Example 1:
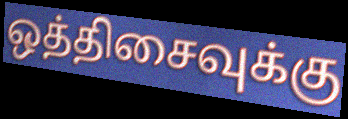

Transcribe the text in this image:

ஒத்திசைவுக்கு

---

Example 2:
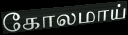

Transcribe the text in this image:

கோலமாய்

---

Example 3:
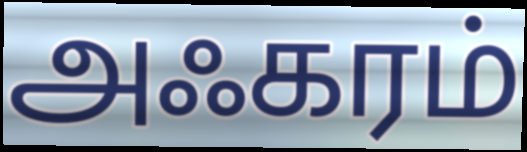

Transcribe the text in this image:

அஃகரம்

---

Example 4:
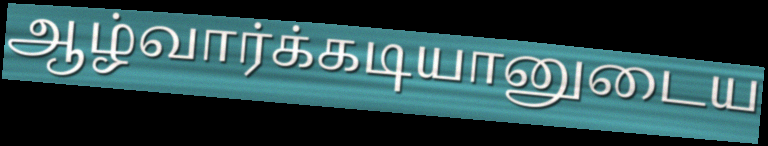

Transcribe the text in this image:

ஆழ்வார்க்கடியானுடைய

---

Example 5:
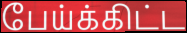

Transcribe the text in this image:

பேய்க்கிட்ட